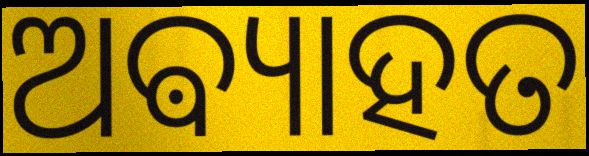
ଅଵ୍ୟାହତ